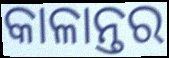
କାଳାନ୍ତର